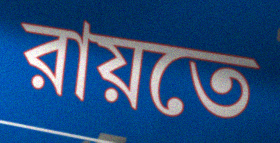
রায়তে